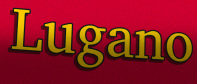
Lugano